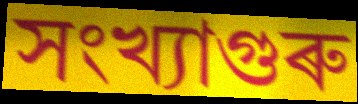
সংখ্যাগুৰু